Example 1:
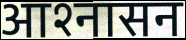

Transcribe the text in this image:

आश्नासन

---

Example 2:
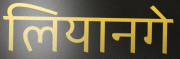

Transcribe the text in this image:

लियानगे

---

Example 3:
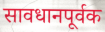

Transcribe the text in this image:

सावधानपूर्वक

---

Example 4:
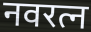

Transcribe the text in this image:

नवरत्न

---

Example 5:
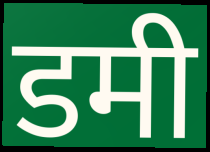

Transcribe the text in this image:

डमी